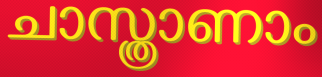
ചാസ്ത്രാണാം